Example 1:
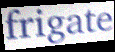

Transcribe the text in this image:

frigate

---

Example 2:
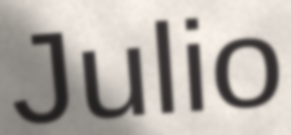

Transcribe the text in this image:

Julio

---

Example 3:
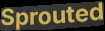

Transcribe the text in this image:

Sprouted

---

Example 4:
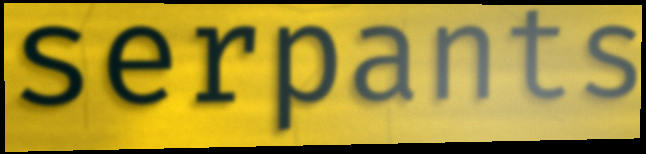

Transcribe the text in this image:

serpants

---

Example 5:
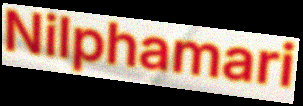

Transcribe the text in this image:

Nilphamari